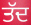
ਤੱਦ